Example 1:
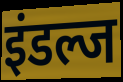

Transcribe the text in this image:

इंडल्ज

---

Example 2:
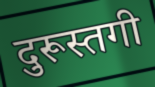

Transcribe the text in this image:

दुरूस्तगी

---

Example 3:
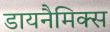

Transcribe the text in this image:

डायनैमिक्‍स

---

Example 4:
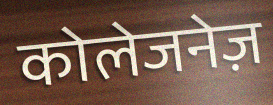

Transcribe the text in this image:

कोलेजनेज़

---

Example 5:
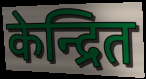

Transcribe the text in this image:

केन्द्रित